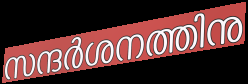
സന്ദർശനത്തിനു